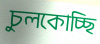
চুলকোচ্ছি